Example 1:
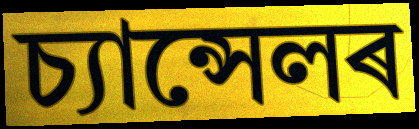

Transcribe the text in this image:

চ্যান্সেলৰ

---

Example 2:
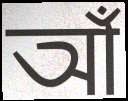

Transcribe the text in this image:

আঁ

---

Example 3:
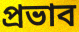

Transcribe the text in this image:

প্ৰভাব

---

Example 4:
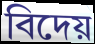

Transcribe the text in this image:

বিদেয়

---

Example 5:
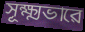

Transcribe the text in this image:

সূক্ষ্মভাৱে